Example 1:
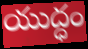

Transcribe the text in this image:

యుద్ధం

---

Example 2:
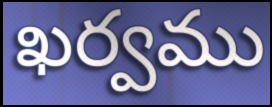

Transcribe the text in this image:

ఖర్వము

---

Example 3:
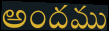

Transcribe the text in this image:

అందము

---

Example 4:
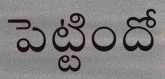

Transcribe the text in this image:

పెట్టిందో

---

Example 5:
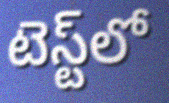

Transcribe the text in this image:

టెస్ట్‌లో